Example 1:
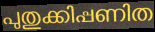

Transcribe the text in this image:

പുതുക്കിപ്പണിത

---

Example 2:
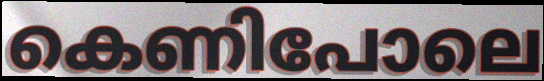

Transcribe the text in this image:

കെണിപോലെ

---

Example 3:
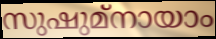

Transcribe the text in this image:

സുഷുമ്നായാം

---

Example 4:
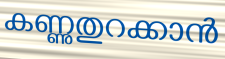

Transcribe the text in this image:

കണ്ണുതുറക്കാൻ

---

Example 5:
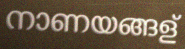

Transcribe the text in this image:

നാണയങ്ങള്